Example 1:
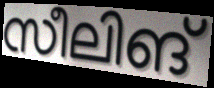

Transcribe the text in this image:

സീലിങ്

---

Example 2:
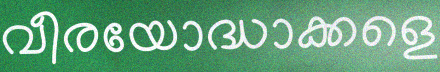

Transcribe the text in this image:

വീരയോദ്ധാക്കളെ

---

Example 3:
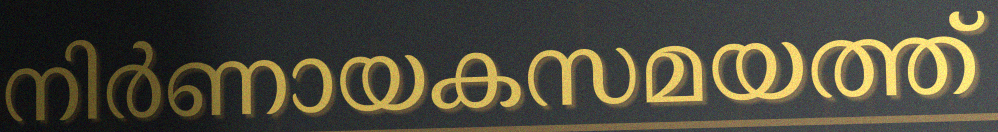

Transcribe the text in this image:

നിർണായകസമയത്ത്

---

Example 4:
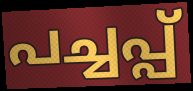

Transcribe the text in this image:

പച്ചപ്പ്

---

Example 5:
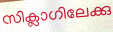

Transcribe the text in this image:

സിക്ലാഗിലേക്കു